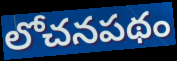
లోచనపథం